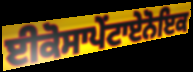
ਈਕੋਸਾਪੇਂਟਾਏਨੋਇਕ